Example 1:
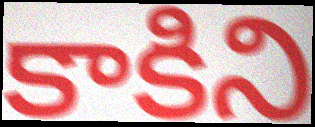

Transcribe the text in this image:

కాకిని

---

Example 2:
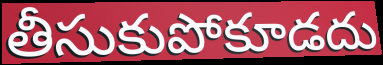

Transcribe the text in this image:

తీసుకుపోకూడదు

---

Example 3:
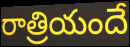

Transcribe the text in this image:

రాత్రియందే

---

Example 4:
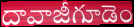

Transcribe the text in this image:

దావాజీగూడెం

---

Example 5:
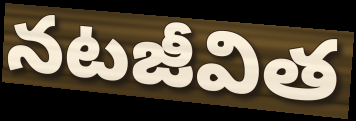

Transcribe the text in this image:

నటజీవిత